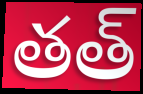
తత్